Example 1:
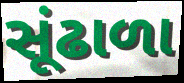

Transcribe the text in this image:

સૂંઢાળા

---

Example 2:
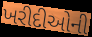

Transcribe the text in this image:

ખરીદીઓની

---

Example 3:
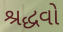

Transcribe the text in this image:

શ્રદ્ધવો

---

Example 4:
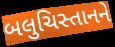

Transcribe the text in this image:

બલુચિસ્તાનને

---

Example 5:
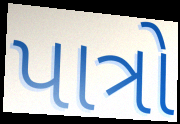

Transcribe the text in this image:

પાત્રો